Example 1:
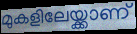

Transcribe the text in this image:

മുകളിലേയ്ക്കാണ്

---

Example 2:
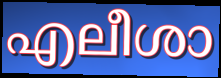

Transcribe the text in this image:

എലീശാ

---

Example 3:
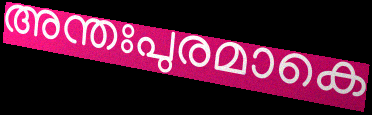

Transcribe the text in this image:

അന്തഃപുരമാകെ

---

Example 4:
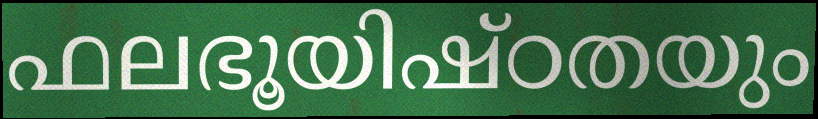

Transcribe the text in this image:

ഫലഭൂയിഷ്ഠതയും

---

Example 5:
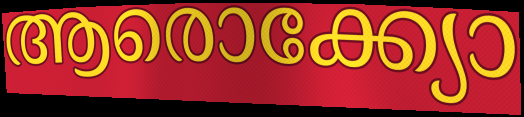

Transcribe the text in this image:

ആരൊക്ക്യോ